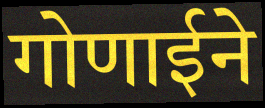
गोणाईने